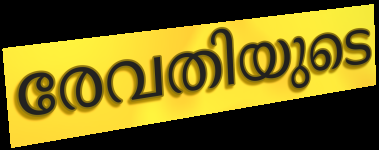
രേവതിയുടെ